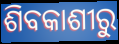
ଶିବକାଶୀରୁ